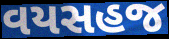
વયસહજ